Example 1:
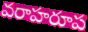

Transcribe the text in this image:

వరాహరూప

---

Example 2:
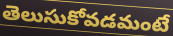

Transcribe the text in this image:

తెలుసుకోవడమంటే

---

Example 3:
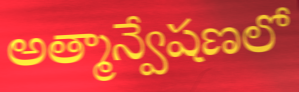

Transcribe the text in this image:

అత్మాన్వేషణలో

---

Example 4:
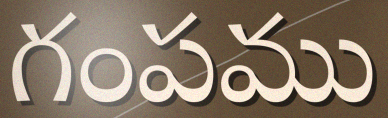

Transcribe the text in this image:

గంపము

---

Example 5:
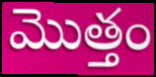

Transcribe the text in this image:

మొత్తం